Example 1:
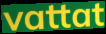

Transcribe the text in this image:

vattat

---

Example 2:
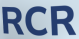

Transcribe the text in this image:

RCR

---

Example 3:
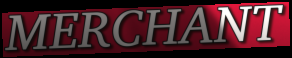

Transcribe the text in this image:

MERCHANT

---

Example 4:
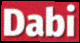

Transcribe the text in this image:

Dabi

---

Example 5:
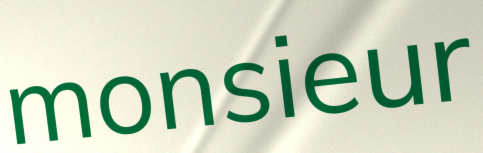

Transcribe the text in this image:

monsieur